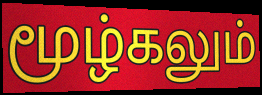
மூழ்கலும்